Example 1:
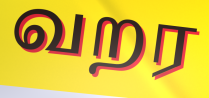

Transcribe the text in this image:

வறர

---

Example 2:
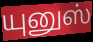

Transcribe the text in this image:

யுனுஸ்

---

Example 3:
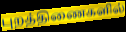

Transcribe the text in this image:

புறத்திணைகளில்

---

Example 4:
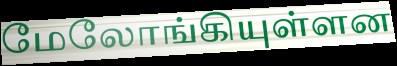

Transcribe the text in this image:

மேலோங்கியுள்ளன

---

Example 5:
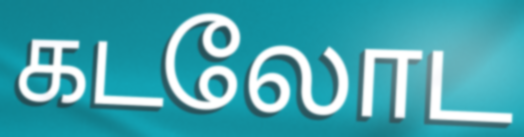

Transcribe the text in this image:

கடலோட